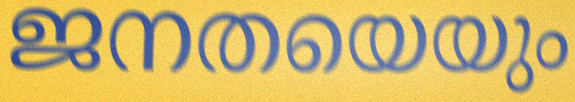
ജനതയെയും